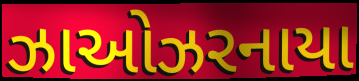
ઝાઓઝરનાયા